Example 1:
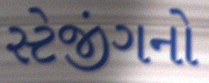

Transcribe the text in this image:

સ્ટેજીંગનો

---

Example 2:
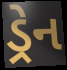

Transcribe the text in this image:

ડ્રેન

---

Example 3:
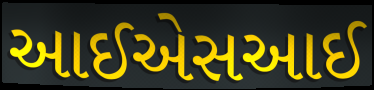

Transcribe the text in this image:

આઈએસઆઈ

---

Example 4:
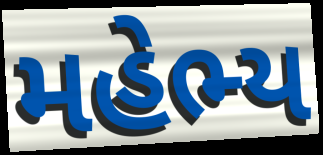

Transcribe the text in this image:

મહેભ્ય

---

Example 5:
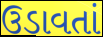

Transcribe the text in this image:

ઉડાવતાં